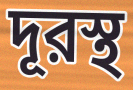
দূরস্থ